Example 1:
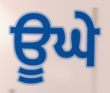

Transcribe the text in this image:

ਊਘੇ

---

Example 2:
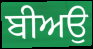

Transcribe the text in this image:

ਬੀਅਉ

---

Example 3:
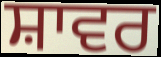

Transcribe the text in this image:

ਸ਼ਾਵਰ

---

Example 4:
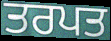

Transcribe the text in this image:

ਤਰਪਤ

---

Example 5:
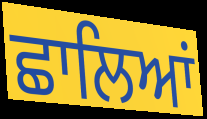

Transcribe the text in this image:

ਛਾਲਿਆਂ